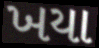
ખયા